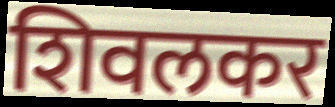
शिवलकर